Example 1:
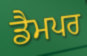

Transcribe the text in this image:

ਡੈਮਪਰ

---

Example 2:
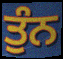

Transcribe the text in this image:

ਤੁੰਨ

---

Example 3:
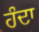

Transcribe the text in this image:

ਹੰਦਾ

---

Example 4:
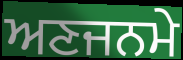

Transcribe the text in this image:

ਅਣਜਨਮੇ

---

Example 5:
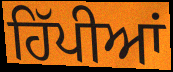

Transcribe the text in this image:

ਹਿੱਪੀਆਂ